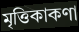
মৃত্তিকাকণা